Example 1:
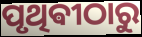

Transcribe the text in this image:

ପୃଥିଵୀଠାରୁ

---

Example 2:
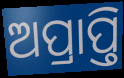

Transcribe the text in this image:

ଅପ୍ରାପ୍ତି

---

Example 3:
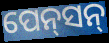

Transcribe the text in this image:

ପେନ୍‍ସନ୍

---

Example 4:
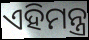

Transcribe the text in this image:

ଏହିମନ୍ତ୍ର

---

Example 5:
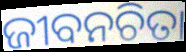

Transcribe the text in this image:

ଜୀବନଚିତା